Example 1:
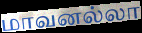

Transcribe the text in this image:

மாவனல்லா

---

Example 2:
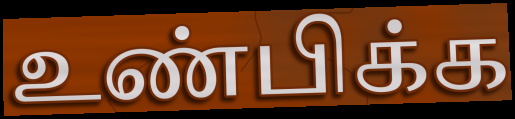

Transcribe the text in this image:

உண்பிக்க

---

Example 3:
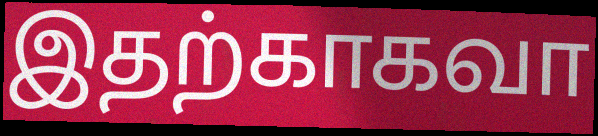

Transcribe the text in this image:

இதற்காகவா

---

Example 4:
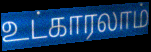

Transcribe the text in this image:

உட்காரலாம்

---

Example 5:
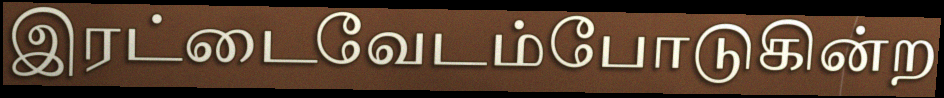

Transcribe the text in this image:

இரட்டைவேடம்போடுகின்ற